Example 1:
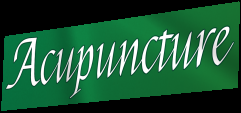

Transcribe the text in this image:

Acupuncture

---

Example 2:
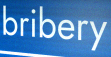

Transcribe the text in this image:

bribery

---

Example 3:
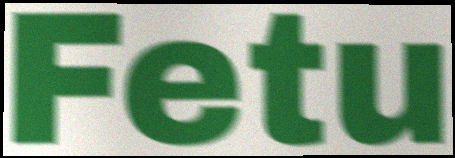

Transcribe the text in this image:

Fetu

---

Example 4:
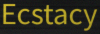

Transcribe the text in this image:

Ecstacy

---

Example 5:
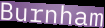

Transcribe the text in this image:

Burnham